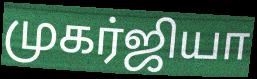
முகர்ஜியா